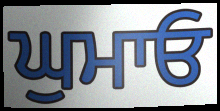
ਘੁਮਾਓ